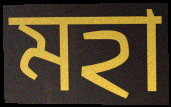
মহা